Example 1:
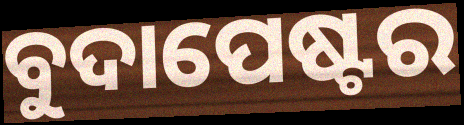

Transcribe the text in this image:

ବୁଦାପେଷ୍ଟର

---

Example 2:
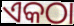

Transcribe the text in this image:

ଏକଠା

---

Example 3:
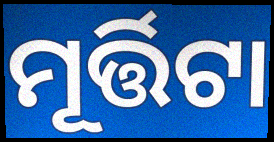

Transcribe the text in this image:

ମୂର୍ତ୍ତିଟା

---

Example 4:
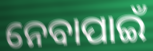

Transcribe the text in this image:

ନେବାପାଇଁ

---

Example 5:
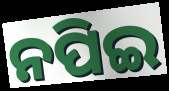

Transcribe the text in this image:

ନପିଇ